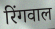
रिंगवाल